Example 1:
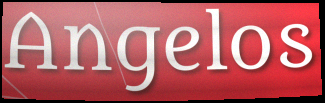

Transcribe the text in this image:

Angelos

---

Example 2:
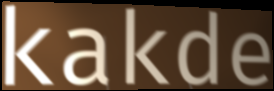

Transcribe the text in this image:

kakde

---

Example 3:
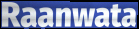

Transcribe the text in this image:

Raanwata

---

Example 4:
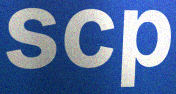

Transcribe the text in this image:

scp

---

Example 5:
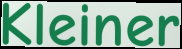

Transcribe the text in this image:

Kleiner